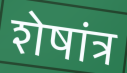
शेषांत्र